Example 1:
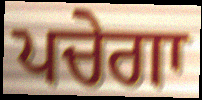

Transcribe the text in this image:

ਪਚੇਗਾ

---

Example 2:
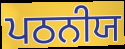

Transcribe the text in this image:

ਪਠਨੀਯ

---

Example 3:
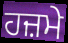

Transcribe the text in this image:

ਹਜ਼ਮੇ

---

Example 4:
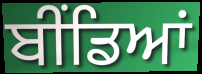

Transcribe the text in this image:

ਬੀਂਡਿਆਂ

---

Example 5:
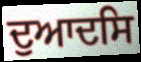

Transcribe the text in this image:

ਦੁਆਦਸਿ